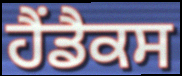
ਹੈਂਡੈਕਸ